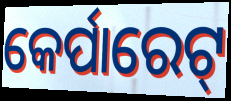
କେର୍ପାରେଟ୍